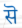
सॆ